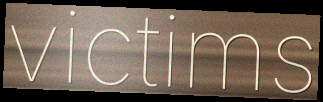
victims